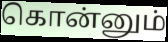
கொன்னும்